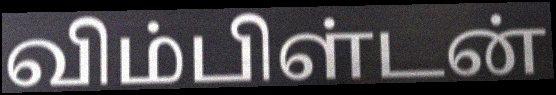
விம்பிள்டன்